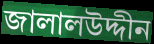
জালালউদ্দীন